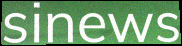
sinews